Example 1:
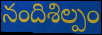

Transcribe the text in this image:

నందిశిల్పం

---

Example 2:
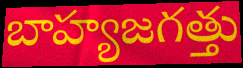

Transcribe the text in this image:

బాహ్యజగత్తు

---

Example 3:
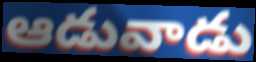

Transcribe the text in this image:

ఆడువాడు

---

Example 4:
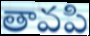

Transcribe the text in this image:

తావపి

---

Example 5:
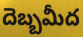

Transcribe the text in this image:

దెబ్బమీద